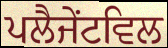
ਪਲੈਜੇਂਟਵਿਲ